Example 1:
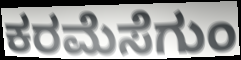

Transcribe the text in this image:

ಕರಮೆಸೆಗುಂ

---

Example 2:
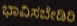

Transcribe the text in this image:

ಭಾವಿಸಬೇಡಿರಿ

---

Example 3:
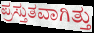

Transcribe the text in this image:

ಪ್ರಸ್ತುತವಾಗಿತ್ತು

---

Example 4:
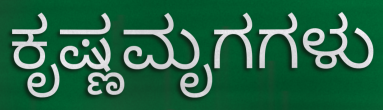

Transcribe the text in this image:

ಕೃಷ್ಣಮೃಗಗಳು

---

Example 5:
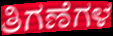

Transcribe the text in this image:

ತಿಗಣೆಗಳ